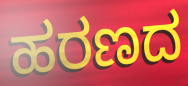
ಹರಣದ